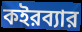
কইরব্যার